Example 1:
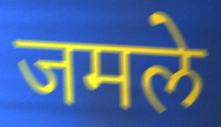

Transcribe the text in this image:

जमले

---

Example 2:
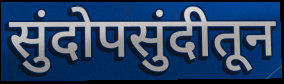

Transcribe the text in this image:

सुंदोपसुंदीतून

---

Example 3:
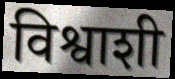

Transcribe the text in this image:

विश्वाशी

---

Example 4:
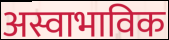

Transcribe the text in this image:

अस्वाभाविक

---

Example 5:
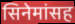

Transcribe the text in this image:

सिनेमांसह